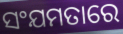
ସଂଯମତାରେ